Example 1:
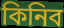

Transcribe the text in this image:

কিনিব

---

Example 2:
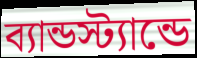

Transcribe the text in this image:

ব্যান্ডস্ট্যান্ডে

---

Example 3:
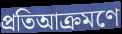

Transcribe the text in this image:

প্রতিআক্রমণে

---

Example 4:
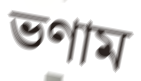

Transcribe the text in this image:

ভণাম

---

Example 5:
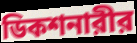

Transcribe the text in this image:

ডিকশনারীর